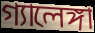
গ্যালেঙ্গা